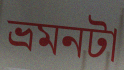
ভ্রমনটা